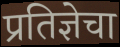
प्रतिज्ञेचा